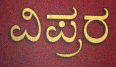
ವಿಪ್ರರ